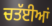
ਚਤੱਈਆਂ